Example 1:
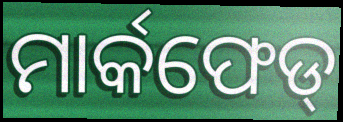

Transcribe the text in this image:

ମାର୍କଫେଡ୍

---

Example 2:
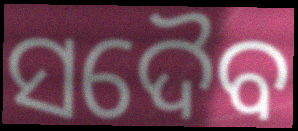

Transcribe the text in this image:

ସଦୈବ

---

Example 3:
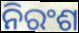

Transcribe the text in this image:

ନିରଂଶ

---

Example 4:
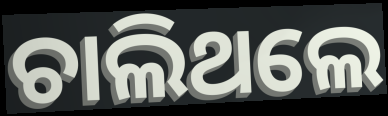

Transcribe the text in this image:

ଚାଲିଥଲେ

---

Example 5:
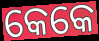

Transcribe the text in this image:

କେକେ